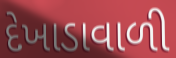
દેખાડાવાળી